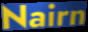
Nairn